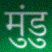
मुंडु